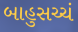
બાહુસચ્ચં